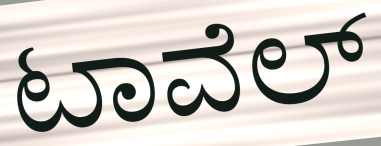
ಟಾವೆಲ್